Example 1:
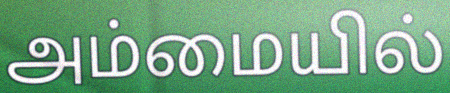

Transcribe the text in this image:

அம்மையில்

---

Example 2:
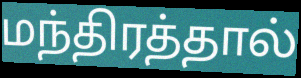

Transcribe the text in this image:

மந்திரத்தால்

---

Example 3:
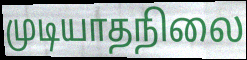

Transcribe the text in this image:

முடியாதநிலை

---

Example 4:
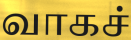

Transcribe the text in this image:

வாகச்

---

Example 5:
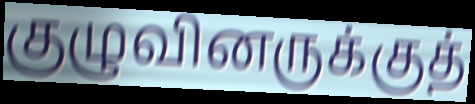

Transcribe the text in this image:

குழுவினருக்குத்